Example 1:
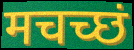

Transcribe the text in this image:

मचच्छं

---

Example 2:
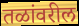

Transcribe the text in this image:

तळांवरील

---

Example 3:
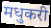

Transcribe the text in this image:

मधुकरी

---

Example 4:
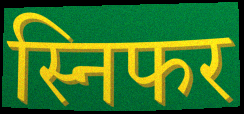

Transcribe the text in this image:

स्निफर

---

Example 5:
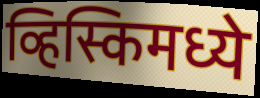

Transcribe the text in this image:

व्हिस्किमध्ये